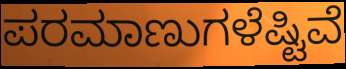
ಪರಮಾಣುಗಳೆಷ್ಟಿವೆ